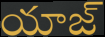
యాజ్